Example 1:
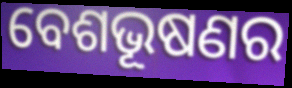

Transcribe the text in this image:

ବେଶଭୂଷଣର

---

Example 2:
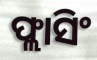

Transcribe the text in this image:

ଫ୍ଲାସିଂ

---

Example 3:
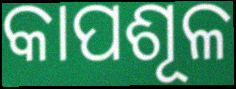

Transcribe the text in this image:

କାପଶୂଳ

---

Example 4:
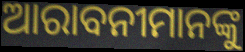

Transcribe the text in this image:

ଆରାବନୀମାନଙ୍କୁ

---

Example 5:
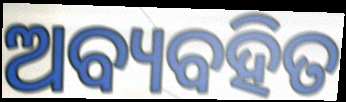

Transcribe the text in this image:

ଅବ୍ୟବହିତ